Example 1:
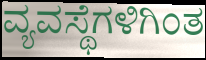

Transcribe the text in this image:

ವ್ಯವಸ್ಥೆಗಳಿಗಿಂತ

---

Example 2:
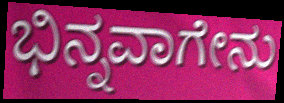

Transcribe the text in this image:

ಭಿನ್ನವಾಗೇನು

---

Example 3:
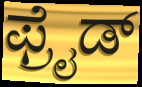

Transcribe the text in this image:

ಫ್ರೈಡ್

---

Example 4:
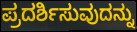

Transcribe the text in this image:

ಪ್ರದರ್ಶಿಸುವುದನ್ನು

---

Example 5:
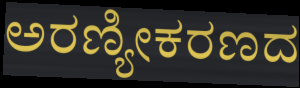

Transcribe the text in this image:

ಅರಣ್ಯೀಕರಣದ